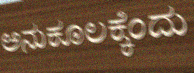
ಅನುಕೂಲಕ್ಕೆಂದು